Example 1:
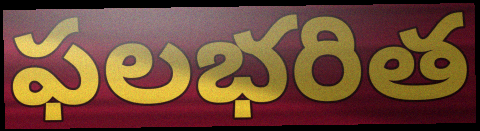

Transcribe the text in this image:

ఫలభరిత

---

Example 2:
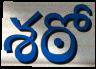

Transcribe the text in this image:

శఠో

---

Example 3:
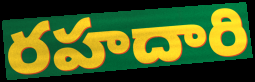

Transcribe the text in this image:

రహదారి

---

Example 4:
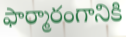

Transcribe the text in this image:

ఫార్మారంగానికి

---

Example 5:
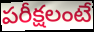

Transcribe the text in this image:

పరీక్షలంటే